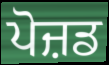
ਪੋਜ਼ਡ